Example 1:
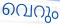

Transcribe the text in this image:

വെറും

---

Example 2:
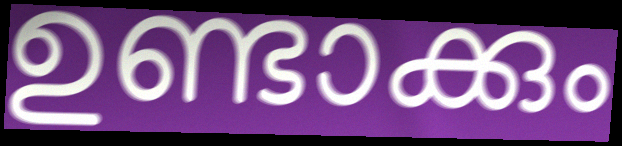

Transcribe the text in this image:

ഉണ്ടാക്കും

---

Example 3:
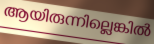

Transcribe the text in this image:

ആയിരുന്നില്ലെങ്കിൽ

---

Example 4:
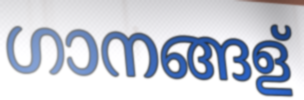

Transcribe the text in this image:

ഗാനങ്ങള്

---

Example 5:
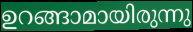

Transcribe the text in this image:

ഉറങ്ങാമായിരുന്നു